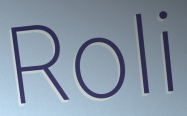
Roli